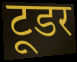
टूडर